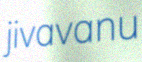
jivavanu